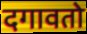
दगावतो